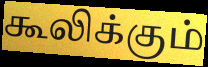
கூலிக்கும்